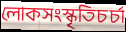
লোকসংস্কৃতিচর্চা